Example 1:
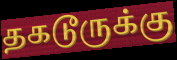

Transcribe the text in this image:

தகடூருக்கு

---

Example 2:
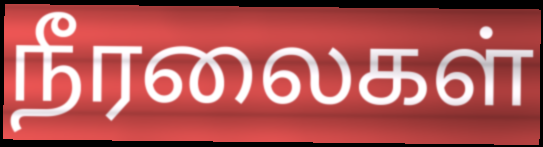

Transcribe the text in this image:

நீரலைகள்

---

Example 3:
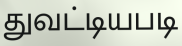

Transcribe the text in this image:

துவட்டியபடி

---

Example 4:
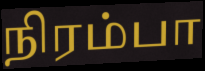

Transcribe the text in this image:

நிரம்பா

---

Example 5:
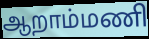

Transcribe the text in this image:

ஆறாம்மணி